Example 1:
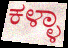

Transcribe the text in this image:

ಕಳ್ಳಾ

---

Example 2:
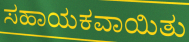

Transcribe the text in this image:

ಸಹಾಯಕವಾಯಿತು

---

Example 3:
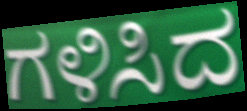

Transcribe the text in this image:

ಗಳಿಸಿದ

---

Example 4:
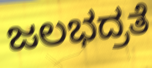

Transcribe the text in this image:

ಜಲಭದ್ರತೆ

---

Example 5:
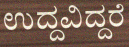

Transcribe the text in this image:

ಉದ್ದವಿದ್ದರೆ